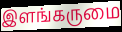
இளங்கருமை